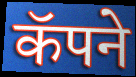
कॅपने